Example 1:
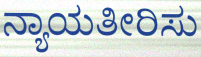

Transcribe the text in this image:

ನ್ಯಾಯತೀರಿಸು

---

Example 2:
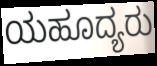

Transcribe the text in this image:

ಯಹೂದ್ಯರು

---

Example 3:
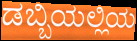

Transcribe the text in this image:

ಡಬ್ಬಿಯಲ್ಲಿಯ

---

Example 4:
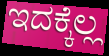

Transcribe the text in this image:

ಇದಕ್ಕೆಲ್ಲ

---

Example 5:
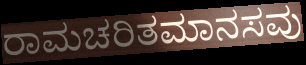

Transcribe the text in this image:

ರಾಮಚರಿತಮಾನಸವು